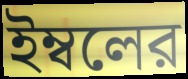
ইম্বলের